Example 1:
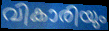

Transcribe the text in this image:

വികാരിയും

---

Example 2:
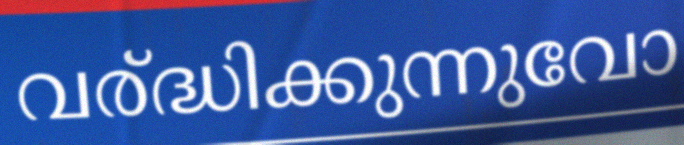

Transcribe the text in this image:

വര്ദ്ധിക്കുന്നുവോ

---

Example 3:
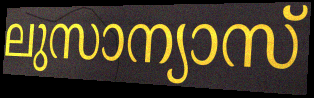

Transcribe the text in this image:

ലുസാന്യാസ്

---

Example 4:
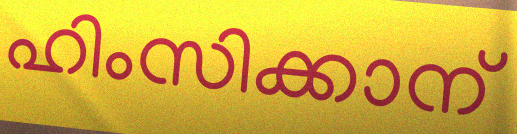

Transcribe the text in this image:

ഹിംസിക്കാന്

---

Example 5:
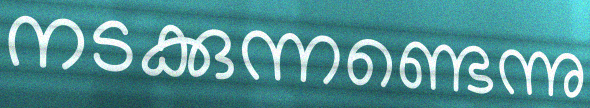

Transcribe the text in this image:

നടക്കുന്നണ്ടെന്നു